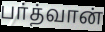
பர்த்வான்